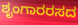
ಶೃಂಗಾರರಸದ